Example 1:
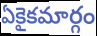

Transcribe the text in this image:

ఏకైకమార్గం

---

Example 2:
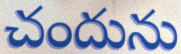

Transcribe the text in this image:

చందును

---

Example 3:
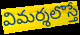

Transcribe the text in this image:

విమర్శలొస్తే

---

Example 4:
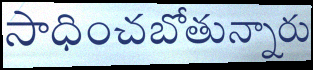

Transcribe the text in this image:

సాధించబోతున్నారు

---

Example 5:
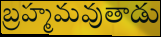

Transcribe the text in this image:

బ్రహ్మమవుతాడు